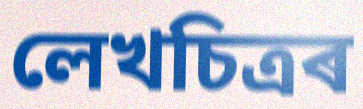
লেখচিত্ৰৰ